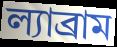
ল্যাব্রাম